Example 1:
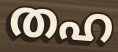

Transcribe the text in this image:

തഹ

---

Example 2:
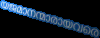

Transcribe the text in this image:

യജമാനന്മാരായവരെ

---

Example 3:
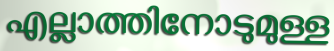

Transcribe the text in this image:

എല്ലാത്തിനോടുമുള്ള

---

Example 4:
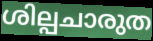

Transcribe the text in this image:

ശില്പചാരുത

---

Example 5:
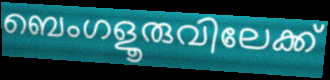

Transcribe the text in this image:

ബെംഗളൂരുവിലേക്ക്